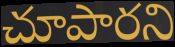
చూపారని